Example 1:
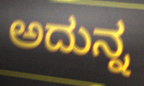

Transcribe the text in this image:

ಅದುನ್ನ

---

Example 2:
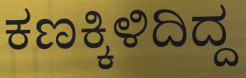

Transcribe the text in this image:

ಕಣಕ್ಕಿಳಿದಿದ್ದ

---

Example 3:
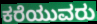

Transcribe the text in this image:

ಕರೆಯುವರು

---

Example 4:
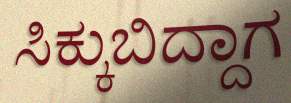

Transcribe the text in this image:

ಸಿಕ್ಕುಬಿದ್ದಾಗ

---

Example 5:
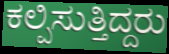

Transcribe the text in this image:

ಕಲ್ಪಿಸುತ್ತಿದ್ದರು